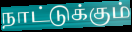
நாட்டுக்கும்